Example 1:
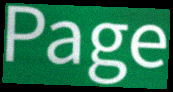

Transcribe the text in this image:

Page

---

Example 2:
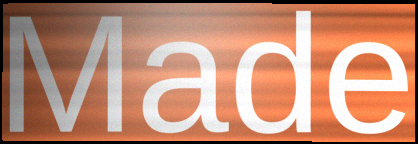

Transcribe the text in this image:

Made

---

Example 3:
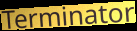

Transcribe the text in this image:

Terminator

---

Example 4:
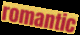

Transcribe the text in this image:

romantic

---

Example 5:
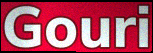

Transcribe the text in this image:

Gouri